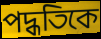
পদ্ধতিকে